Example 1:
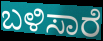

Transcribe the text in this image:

ಬಳಿಸಾರೆ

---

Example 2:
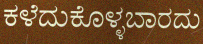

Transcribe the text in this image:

ಕಳೆದುಕೊಳ್ಳಬಾರದು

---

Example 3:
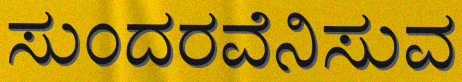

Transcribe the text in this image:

ಸುಂದರವೆನಿಸುವ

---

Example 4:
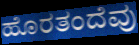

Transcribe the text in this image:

ಹೊರತಂದೆವು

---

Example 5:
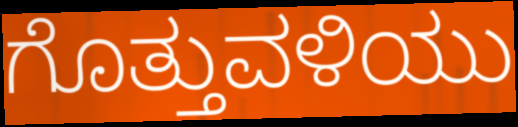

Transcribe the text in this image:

ಗೊತ್ತುವಳಿಯು